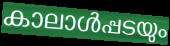
കാലാൾപ്പടയും